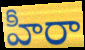
హీరా